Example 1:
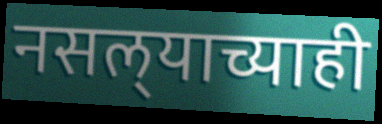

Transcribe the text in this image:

नसल्याच्याही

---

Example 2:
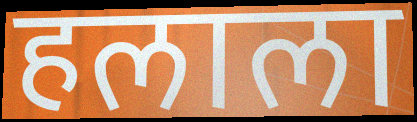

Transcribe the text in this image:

हलाला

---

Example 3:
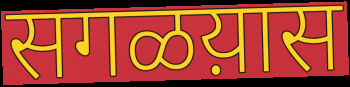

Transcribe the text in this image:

सगळय़ास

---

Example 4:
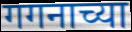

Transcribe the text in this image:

गगनाच्या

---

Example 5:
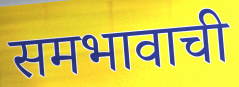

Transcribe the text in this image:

समभावाची